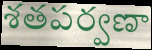
శతపర్వణా